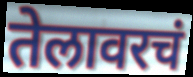
तेलावरचं